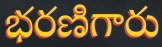
భరణిగారు